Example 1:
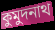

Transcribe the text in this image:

কুমুদনাথ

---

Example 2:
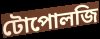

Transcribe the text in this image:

টোপোলজি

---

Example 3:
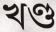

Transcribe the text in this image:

খণ্ড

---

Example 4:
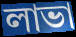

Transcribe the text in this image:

লাভা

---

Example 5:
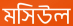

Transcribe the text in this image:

মসিউল